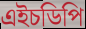
এইচডিপি